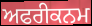
ਅਫਰੀਕਨਮ